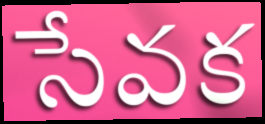
సేవక